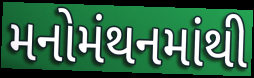
મનોમંથનમાંથી